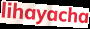
lihayacha